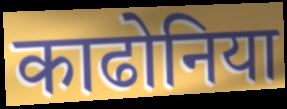
काढोनिया